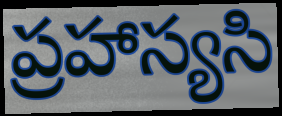
ప్రహాస్యసి